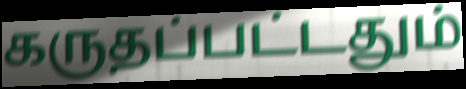
கருதப்பட்டதும்